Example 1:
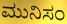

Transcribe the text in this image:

ಮುನಿಸಂ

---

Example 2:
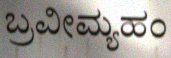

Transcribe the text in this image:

ಬ್ರವೀಮ್ಯಹಂ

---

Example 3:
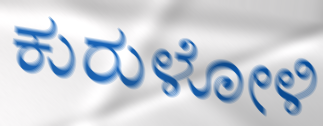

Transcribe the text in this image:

ಕುರುಳೋಳಿ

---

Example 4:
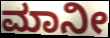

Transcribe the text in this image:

ಮಾನೀ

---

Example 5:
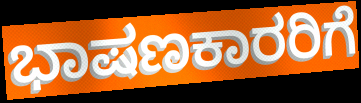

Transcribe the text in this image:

ಭಾಷಣಕಾರರಿಗೆ